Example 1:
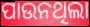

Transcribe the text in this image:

ପାଉନଥିଲା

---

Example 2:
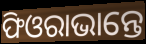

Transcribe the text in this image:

ଫିଓରାଭାନ୍ତେ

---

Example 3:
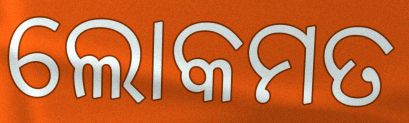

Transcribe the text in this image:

ଲୋକମତ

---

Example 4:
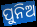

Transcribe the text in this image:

ପୁନିଅ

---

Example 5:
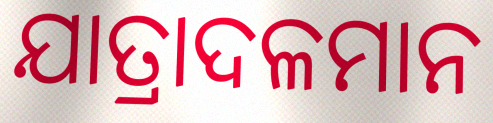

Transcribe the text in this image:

ଯାତ୍ରାଦଳମାନ